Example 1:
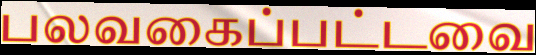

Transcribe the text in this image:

பலவகைப்பட்டவை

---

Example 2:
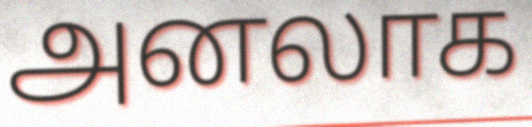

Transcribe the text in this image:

அனலாக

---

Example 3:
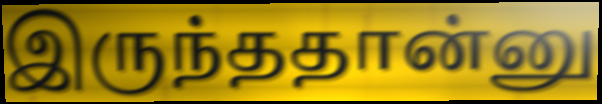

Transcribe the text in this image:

இருந்ததான்னு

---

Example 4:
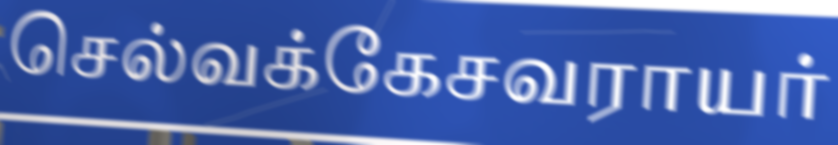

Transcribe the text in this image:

செல்வக்கேசவராயர்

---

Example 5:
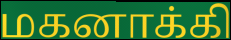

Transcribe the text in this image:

மகனாக்கி